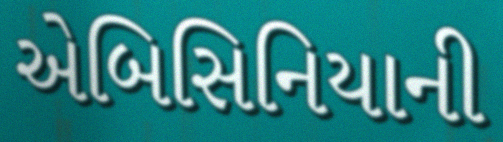
એબિસિનિયાની